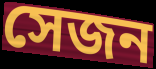
সেজন